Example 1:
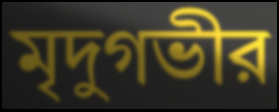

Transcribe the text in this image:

মৃদুগভীর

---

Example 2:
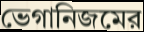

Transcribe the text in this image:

ভেগানিজমের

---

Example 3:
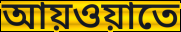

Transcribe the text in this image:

আয়ওয়াতে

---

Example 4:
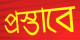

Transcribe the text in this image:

প্রস্তাবে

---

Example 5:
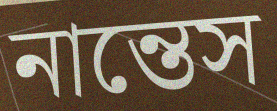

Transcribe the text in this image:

নান্তেস